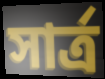
সার্ত্র